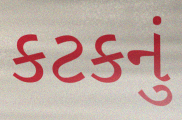
કટકનું